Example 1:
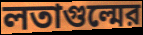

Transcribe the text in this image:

লতাগুল্মের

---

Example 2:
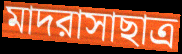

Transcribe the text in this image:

মাদরাসাছাত্র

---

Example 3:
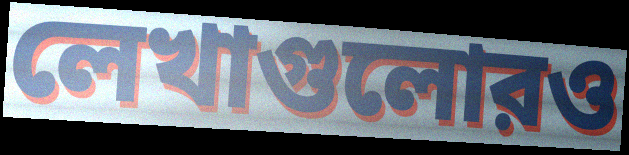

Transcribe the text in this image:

লেখাগুলোরও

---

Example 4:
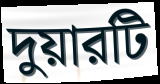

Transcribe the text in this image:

দুয়ারটি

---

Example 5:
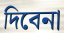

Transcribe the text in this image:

দিবেনা